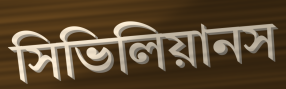
সিভিলিয়ানস